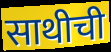
साथीची